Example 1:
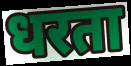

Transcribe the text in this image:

धरता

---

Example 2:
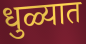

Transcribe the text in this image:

धुळ्यात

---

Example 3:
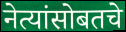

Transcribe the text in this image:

नेत्यांसोबतचे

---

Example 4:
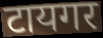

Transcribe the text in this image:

टायगर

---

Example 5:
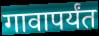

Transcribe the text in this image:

गावापर्यंत